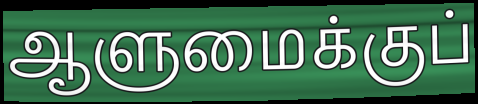
ஆளுமைக்குப்